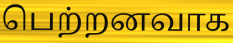
பெற்றனவாக